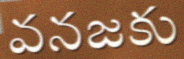
వనజకు